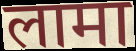
लामा